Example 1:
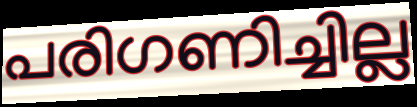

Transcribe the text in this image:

പരിഗണിച്ചില്ല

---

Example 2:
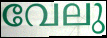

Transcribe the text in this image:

വേലു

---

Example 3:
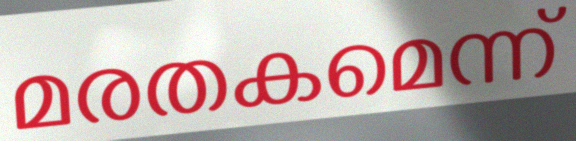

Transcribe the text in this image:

മരതകമെന്ന്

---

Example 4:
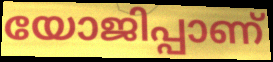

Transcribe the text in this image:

യോജിപ്പാണ്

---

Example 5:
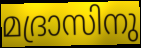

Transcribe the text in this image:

മദ്രാസിനു